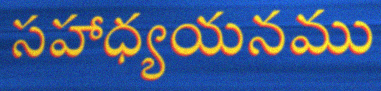
సహాధ్యయనము